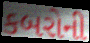
કબરોની